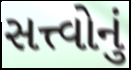
સત્ત્વોનું